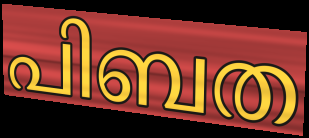
പിബത